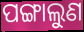
ପଙ୍ଗାଲୁଣ